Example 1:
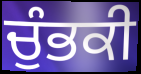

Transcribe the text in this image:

ਚੁੰਭਕੀ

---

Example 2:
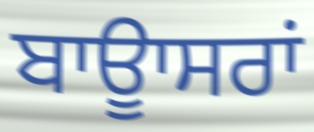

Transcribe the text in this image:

ਬਾਊਾਸਰਾਂ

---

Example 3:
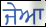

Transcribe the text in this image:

ਜੇਆ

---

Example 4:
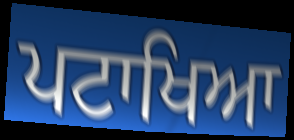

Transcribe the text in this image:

ਪਟਾਖਿਆ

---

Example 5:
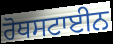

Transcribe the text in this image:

ਰੋਥਸਟਾਈਨ